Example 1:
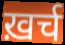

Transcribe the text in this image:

ख़र्च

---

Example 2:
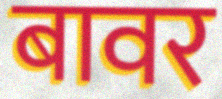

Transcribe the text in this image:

बावर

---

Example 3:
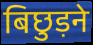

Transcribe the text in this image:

बिछुड़ने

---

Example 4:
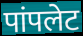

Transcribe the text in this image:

पांपलेट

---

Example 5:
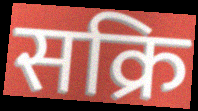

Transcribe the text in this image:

सक्रि